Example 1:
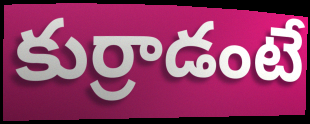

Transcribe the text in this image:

కుర్రాడంటే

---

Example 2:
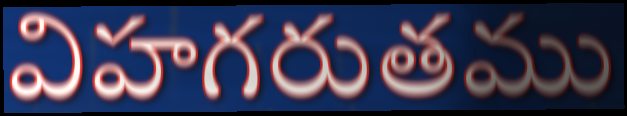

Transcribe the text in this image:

విహగరుతము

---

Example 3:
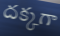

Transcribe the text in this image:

దక్కగా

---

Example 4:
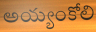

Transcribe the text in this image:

అయ్యంకోలి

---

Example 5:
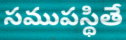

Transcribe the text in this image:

సముపస్థితే